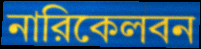
নারিকেলবন